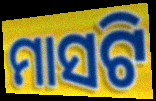
ମାସଟି